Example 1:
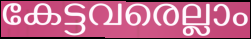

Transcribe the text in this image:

കേട്ടവരെല്ലാം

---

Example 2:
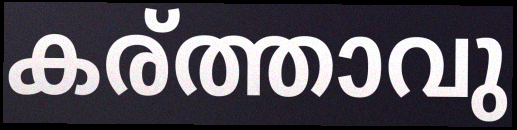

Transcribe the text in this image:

കര്ത്താവു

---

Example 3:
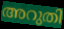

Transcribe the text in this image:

അറുതി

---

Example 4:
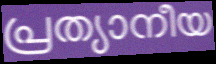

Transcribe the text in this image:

പ്രത്യാനീയ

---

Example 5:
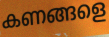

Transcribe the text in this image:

കണങ്ങളെ